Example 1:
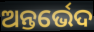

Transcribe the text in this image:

ଅନ୍ତର୍ଭେଦ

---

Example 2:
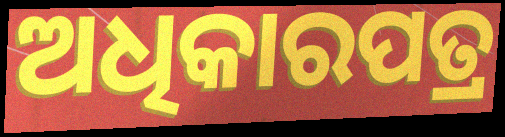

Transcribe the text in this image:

ଅଧିକାରପତ୍ର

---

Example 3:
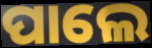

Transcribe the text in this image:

ପାଲେ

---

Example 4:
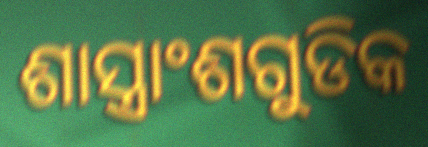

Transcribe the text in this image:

ଶାସ୍ତ୍ରାଂଶଗୁଡିକ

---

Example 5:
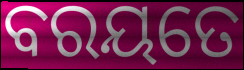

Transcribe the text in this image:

ବରୟତେ